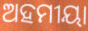
ଅହମୀୟା